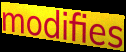
modifies